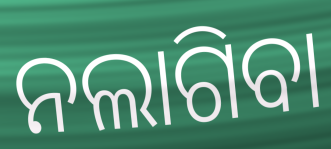
ନଲାଗିବା